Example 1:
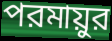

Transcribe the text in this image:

পরমায়ুর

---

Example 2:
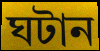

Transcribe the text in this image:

ঘটান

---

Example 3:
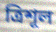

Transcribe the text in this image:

ত্রিশূল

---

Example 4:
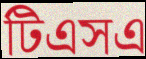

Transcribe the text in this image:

টিএসএ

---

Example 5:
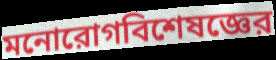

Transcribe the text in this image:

মনোরোগবিশেষজ্ঞের